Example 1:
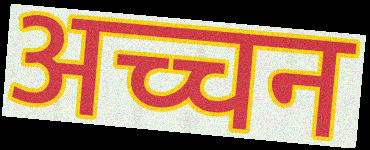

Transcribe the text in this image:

अच्चन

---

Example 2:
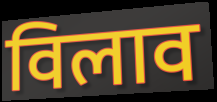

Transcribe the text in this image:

विलाव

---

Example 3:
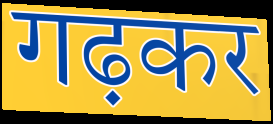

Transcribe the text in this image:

गढ़कर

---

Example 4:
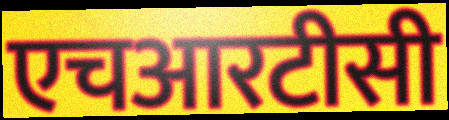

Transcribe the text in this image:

एचआरटीसी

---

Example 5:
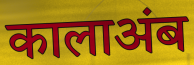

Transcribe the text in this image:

कालाअंब